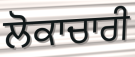
ਲੋਕਾਚਾਰੀ